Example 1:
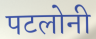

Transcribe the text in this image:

पटलोनी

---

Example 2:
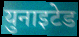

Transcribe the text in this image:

युनाइटेड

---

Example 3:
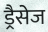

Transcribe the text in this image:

ड्रैसेज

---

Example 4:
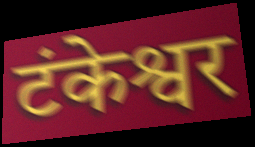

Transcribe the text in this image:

टंकेश्वर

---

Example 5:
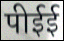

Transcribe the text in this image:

पीईई